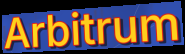
Arbitrum